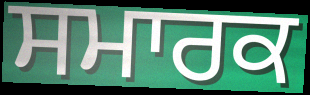
ਸਮਾਰਕ